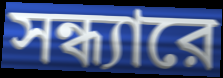
সন্ধ্যারে